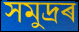
সমুদ্ৰৰ